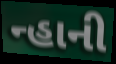
ન્હાની